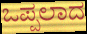
ಒಪ್ಪಲಾದ